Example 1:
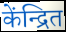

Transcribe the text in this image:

केंन्द्रित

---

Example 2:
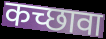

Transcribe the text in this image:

कच्छावा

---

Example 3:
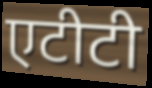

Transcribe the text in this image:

एटीटी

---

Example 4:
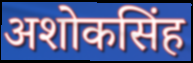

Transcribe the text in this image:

अशोकसिंह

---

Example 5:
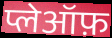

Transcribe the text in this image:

प्लेऑफ़